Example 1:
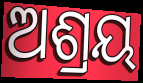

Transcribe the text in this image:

ଅଶ୍ରୟ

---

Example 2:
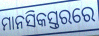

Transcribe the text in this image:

ମାନସିକସ୍ତରରେ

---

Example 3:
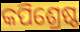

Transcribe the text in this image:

କପିଶ୍ରେଷ୍ଠ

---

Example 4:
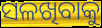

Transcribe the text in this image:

ସଳଖିବାକୁ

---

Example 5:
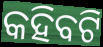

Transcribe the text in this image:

କହିବଟି